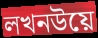
লখনউয়ে